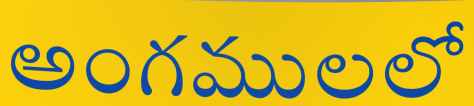
అంగములలో